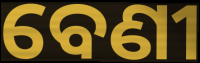
ବେଣୀ